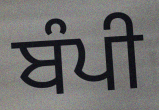
ਬੰਪੀ